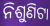
ନିଶୁଣିଟା